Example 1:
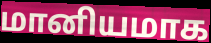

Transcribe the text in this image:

மானியமாக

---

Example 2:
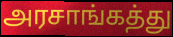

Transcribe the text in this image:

அரசாங்கத்து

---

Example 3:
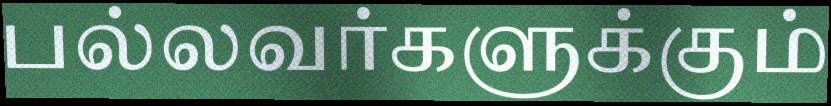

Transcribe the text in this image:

பல்லவர்களுக்கும்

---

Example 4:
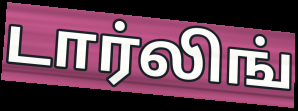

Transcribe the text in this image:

டார்லிங்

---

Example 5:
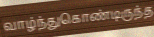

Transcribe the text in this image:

வாழ்ந்துகொண்டிருந்த